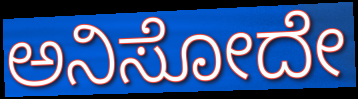
ಅನಿಸೋದೇ